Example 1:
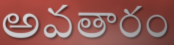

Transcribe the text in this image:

అవతారం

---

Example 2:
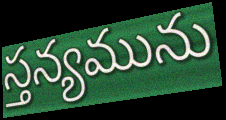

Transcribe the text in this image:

స్తన్యమును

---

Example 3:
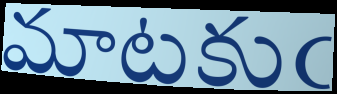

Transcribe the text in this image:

మాటకుఁ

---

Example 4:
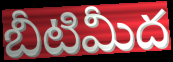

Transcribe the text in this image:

బీటిమీద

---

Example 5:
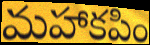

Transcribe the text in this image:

మహాకపిం